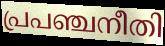
പ്രപഞ്ചനീതി